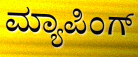
ಮ್ಯಾಪಿಂಗ್